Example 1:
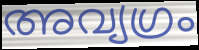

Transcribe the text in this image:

അവ്യഗ്രം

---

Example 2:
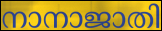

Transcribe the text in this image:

നാനാജാതി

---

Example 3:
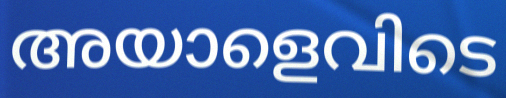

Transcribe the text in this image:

അയാളെവിടെ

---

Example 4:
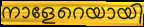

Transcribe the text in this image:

നാളേറെയായി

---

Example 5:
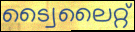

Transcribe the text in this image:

ട്വൈലൈറ്റ്